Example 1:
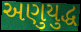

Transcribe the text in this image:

અણુયુદ્ધ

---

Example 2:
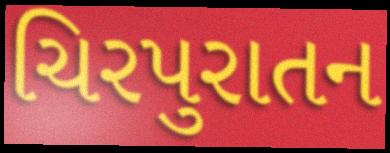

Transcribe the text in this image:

ચિરપુરાતન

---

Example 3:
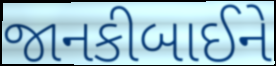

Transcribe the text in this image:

જાનકીબાઈને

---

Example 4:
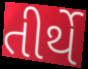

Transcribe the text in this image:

તીર્થે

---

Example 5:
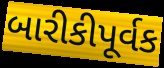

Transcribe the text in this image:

બારીકીપૂર્વક